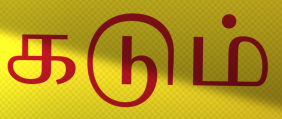
கடும்